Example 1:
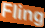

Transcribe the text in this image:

Fling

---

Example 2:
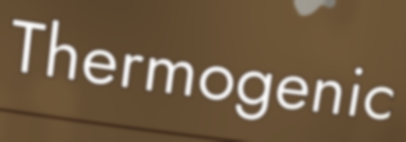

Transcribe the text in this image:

Thermogenic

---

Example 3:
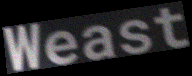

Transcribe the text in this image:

Weast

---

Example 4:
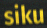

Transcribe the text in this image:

siku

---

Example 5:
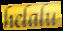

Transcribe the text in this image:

helalu